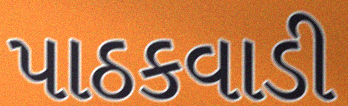
પાઠકવાડી